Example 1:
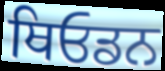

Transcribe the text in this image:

ਥਿਓਡਨ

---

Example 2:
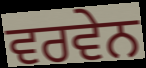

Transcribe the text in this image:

ਵਰਵੇਨ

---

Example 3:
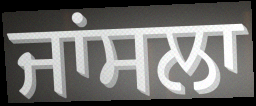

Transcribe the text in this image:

ਜਾਂਸਲਾ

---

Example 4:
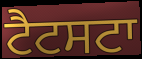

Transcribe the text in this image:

ਟੈਟਸਟਾ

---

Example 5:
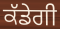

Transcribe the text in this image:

ਕੱਡੇਗੀ